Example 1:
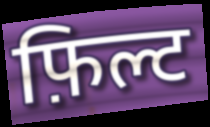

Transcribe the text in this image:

फ़िल्ट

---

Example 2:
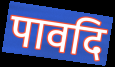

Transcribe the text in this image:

पावदि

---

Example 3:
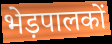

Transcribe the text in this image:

भेड़पालकों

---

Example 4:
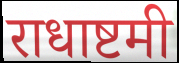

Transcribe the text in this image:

राधाष्टमी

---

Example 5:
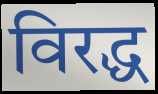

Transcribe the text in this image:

विरद्ध